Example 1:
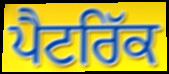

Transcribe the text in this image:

ਪੈਟਰਿੱਕ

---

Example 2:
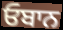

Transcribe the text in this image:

ਓਬਾਨ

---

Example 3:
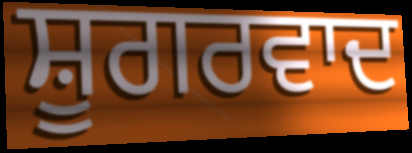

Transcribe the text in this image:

ਸ਼ੂਗਰਵਾਦ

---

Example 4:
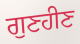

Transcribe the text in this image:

ਗੁਣਹੀਣ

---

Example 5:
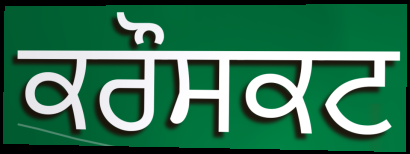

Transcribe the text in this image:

ਕਰੌਸਕਟ